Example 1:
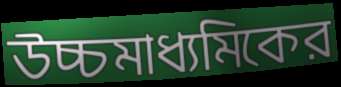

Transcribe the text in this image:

উচ্চমাধ্যমিকের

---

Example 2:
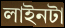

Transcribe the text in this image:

লাইনটা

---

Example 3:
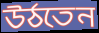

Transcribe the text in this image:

উঠতেন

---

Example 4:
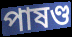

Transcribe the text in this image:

পাষণ্ড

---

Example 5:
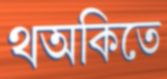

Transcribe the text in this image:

থঅকিতে